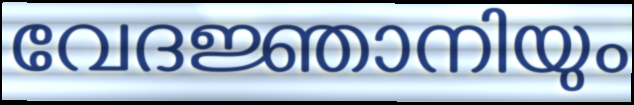
വേദജ്ഞാനിയും